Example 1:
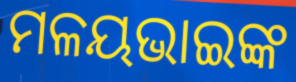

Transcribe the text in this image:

ମଳୟଭାଇଙ୍କ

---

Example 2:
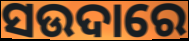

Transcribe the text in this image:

ସଉଦାରେ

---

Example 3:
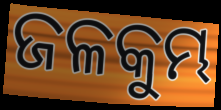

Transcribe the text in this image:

ଜଳକୁମ୍ଭ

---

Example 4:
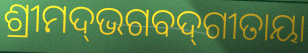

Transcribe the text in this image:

ଶ୍ରୀମଦ୍‌ଭଗବଦ୍‌ଗୀତାୟା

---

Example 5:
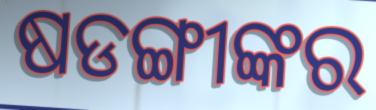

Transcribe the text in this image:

ଷଡଙ୍ଗୀଙ୍କର